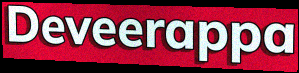
Deveerappa